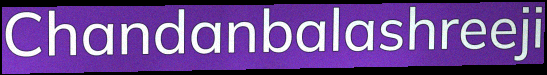
Chandanbalashreeji